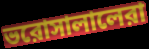
ভরোসালালেরা